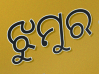
ଝୁମୁର